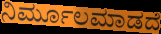
ನಿರ್ಮೂಲಮಾಡದೆ